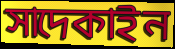
সাদেকাইন